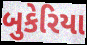
બુકેરિયા